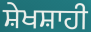
ਸ਼ੇਖਸ਼ਾਹੀ